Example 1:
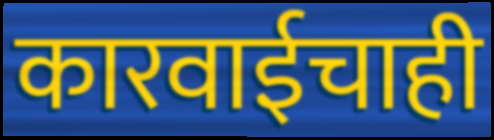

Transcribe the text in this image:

कारवाईचाही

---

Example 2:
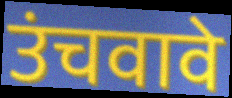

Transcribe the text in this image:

उंचवावे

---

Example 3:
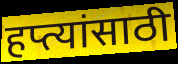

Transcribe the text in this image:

हप्त्यांसाठी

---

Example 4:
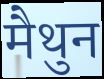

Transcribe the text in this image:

मैथुन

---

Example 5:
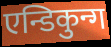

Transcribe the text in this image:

एन्डिकुन्ग